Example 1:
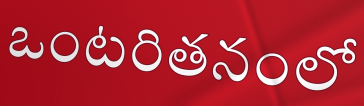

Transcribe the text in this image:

ఒంటరితనంలో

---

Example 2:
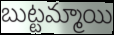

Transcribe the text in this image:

బుట్టమ్మాయి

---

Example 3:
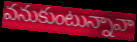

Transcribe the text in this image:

వనుకుంటున్నావా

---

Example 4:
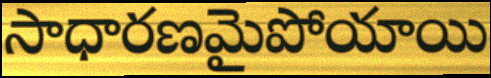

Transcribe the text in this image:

సాధారణమైపోయాయి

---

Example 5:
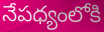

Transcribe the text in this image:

నేపధ్యంలోకి